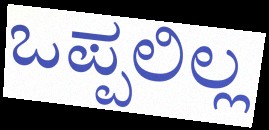
ಒಪ್ಪಲಿಲ್ಲ